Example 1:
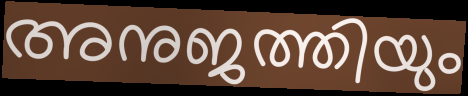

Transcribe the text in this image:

അനുജത്തിയും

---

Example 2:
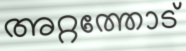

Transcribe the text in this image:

അറ്റത്തോട്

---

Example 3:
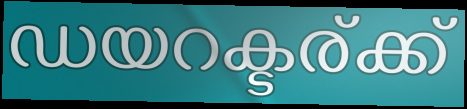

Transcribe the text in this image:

ഡയറക്ടര്ക്ക്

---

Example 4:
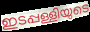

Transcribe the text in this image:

ഇടപ്പള്ളിയുടെ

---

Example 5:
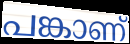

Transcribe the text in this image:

പങ്കാണ്